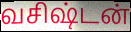
வசிஷ்டன்